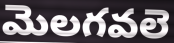
మెలగవలె